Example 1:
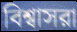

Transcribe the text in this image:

বিশ্বাসরা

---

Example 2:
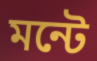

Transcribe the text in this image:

মন্টে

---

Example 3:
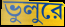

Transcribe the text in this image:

ভুলুরে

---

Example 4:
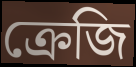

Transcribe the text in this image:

ক্রেজি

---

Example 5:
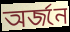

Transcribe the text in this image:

অর্জনে